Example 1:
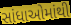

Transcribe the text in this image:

સાંધાઓમાંથી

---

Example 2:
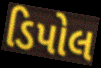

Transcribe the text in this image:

ડિપોલ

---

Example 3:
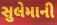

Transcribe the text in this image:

સુલેમાની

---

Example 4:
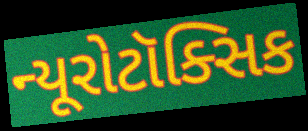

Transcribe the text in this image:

ન્યૂરોટૉક્સિક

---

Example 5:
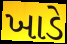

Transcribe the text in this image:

ખાડે